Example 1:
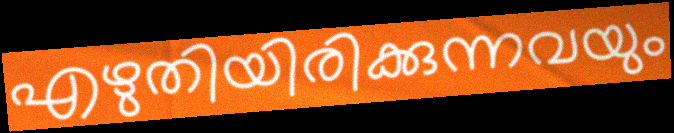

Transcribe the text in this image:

എഴുതിയിരിക്കുന്നവയും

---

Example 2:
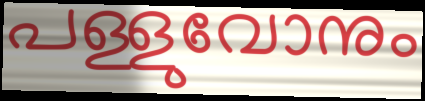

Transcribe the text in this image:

പള്ളുവോനും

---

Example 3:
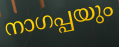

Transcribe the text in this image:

നാഗപ്പയും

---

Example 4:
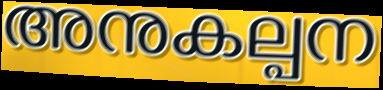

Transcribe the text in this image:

അനുകല്പന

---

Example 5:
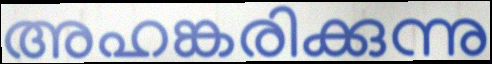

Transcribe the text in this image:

അഹങ്കരിക്കുന്നു